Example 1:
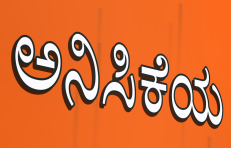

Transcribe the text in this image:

ಅನಿಸಿಕೆಯ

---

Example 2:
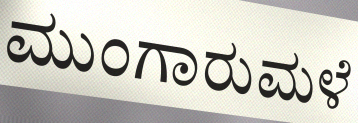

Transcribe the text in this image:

ಮುಂಗಾರುಮಳೆ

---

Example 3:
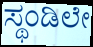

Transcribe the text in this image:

ಸ್ಥಂಡಿಲೇ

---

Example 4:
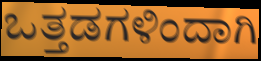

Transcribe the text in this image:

ಒತ್ತಡಗಳಿಂದಾಗಿ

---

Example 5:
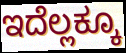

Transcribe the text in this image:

ಇದೆಲ್ಲಕ್ಕೂ